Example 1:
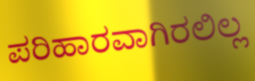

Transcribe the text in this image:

ಪರಿಹಾರವಾಗಿರಲಿಲ್ಲ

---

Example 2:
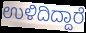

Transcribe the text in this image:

ಉಳಿದಿದ್ದಾರೆ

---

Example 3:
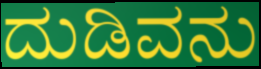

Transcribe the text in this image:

ದುಡಿವನು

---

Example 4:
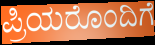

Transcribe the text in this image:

ಪ್ರಿಯರೊಂದಿಗೆ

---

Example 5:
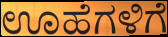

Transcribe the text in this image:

ಊಹೆಗಳಿಗೆ